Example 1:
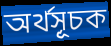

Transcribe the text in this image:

অর্থসূচক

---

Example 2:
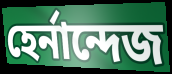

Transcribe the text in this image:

হের্নান্দেজ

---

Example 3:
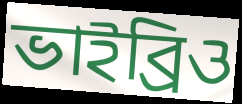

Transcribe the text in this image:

ভাইব্রিও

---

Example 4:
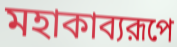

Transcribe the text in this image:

মহাকাব্যরূপে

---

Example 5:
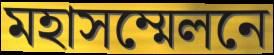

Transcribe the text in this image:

মহাসম্মেলনে